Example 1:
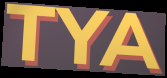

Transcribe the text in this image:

TYA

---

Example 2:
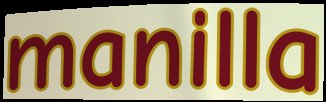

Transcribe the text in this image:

manilla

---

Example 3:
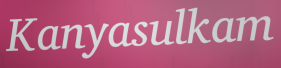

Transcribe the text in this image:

Kanyasulkam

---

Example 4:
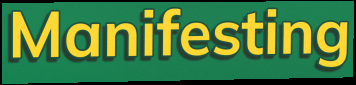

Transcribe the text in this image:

Manifesting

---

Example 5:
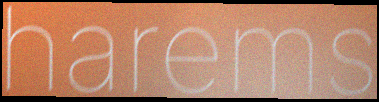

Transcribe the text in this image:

harems